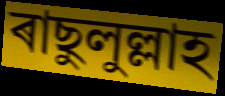
ৰাছুলুল্লাহ